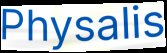
Physalis